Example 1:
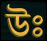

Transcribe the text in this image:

উঃ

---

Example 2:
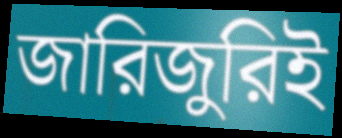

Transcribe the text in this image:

জারিজুরিই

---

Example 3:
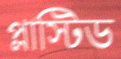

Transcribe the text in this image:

প্লাস্টিড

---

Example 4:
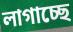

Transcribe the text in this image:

লাগাচ্ছে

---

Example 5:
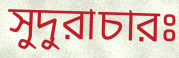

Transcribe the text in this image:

সুদুরাচারঃ